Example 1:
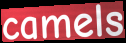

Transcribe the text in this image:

camels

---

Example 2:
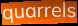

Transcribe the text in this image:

quarrels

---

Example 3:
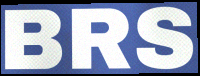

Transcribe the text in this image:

BRS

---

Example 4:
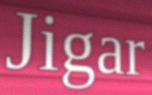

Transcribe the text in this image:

Jigar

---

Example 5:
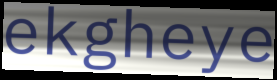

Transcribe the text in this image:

ekgheye